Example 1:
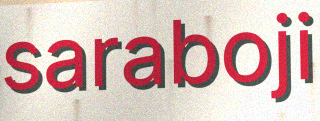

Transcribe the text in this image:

saraboji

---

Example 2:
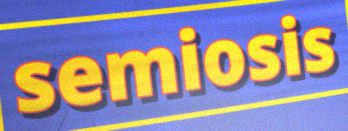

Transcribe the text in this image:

semiosis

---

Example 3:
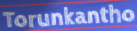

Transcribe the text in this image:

Torunkantho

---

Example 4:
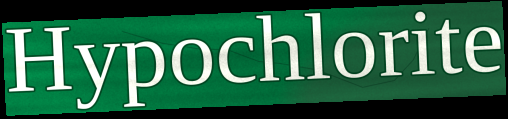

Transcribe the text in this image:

Hypochlorite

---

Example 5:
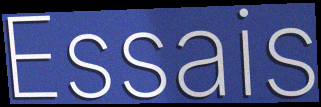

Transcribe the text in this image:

Essais